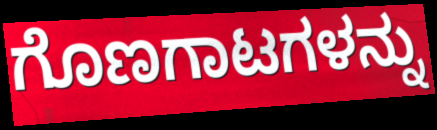
ಗೊಣಗಾಟಗಳನ್ನು